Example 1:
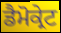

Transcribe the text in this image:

ਡੈਮੋਕ੍ਰੇਟ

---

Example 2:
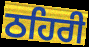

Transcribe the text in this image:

ਠਹਿਰੀ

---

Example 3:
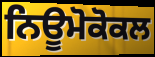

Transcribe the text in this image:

ਨਿਊਮੋਕੋਕਲ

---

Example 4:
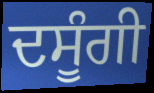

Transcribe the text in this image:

ਦਸੂੰਗੀ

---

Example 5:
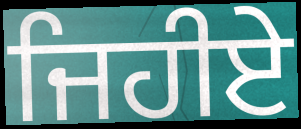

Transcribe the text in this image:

ਜਿਹੀਏ